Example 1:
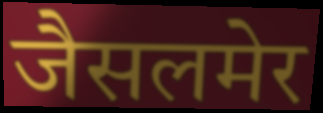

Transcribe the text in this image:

जैसलमेर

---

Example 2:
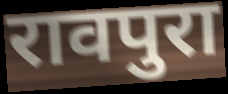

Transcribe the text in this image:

रावपुरा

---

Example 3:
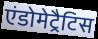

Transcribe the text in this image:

एंडोमेट्रैटिस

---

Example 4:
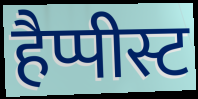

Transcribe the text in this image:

हैप्पीस्ट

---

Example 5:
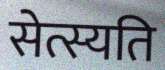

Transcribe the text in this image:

सेत्स्यति